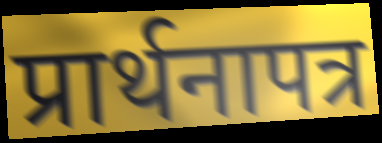
प्रार्थनापत्र